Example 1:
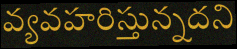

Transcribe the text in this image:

వ్యవహరిస్తున్నదని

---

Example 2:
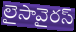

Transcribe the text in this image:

లైసావైరస్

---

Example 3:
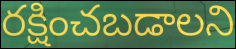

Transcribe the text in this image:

రక్షించబడాలని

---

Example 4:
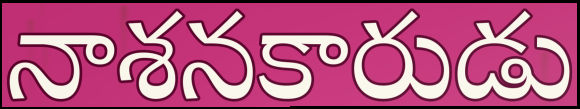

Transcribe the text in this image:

నాశనకారుడు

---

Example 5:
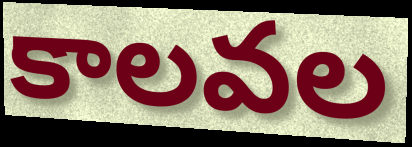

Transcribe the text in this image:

కాలవల